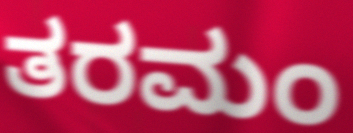
ತರಮಂ